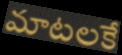
మాటలకే